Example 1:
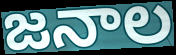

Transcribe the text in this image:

జనాల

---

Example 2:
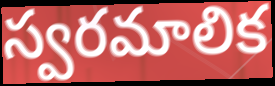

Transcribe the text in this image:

స్వరమాలిక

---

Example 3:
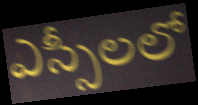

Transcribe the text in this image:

ఎస్సీలలో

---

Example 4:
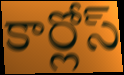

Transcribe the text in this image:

కార్లోస్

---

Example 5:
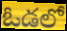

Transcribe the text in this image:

ఓడలో